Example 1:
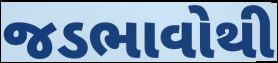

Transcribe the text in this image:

જડભાવોથી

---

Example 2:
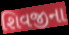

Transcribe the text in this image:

શિવજીના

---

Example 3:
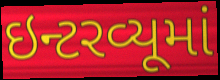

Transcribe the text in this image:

ઇન્ટરવ્યૂમાં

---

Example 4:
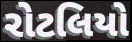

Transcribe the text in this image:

રોટલિયો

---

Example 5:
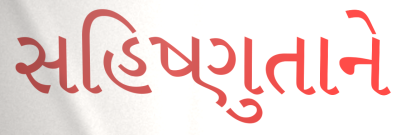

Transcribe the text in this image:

સહિષ્ણુતાને